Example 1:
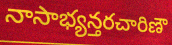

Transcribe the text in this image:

నాసాభ్యన్తరచారిణౌ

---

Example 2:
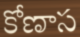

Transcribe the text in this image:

కోణాస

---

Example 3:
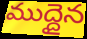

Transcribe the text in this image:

ముద్దైన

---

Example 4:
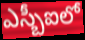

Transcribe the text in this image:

ఎస్బీఐలో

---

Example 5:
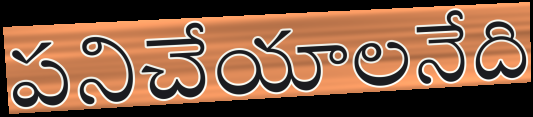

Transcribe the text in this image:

పనిచేయాలనేది